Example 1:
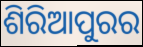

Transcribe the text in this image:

ଶିରିଆପୁରର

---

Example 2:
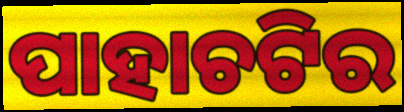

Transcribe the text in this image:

ପାହାଚଟିର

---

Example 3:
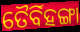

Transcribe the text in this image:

ତୈର୍ବିହଙ୍ଗା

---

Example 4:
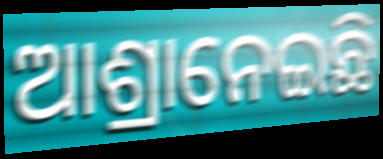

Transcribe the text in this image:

ଆଶ୍ରାନେଇଛି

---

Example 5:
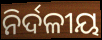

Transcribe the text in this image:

ନିର୍ଦଳୀୟ